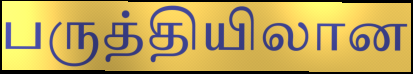
பருத்தியிலான